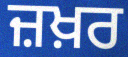
ਜ਼ਖ਼ਰ